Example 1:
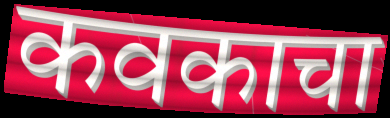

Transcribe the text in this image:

कवकाचा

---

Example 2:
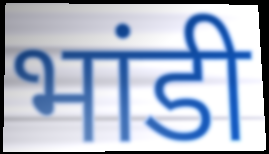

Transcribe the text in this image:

भांडी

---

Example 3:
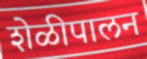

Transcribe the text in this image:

शेळीपालन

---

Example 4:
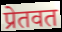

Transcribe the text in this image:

प्रेतवत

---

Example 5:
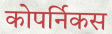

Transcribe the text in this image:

कोपर्निकस